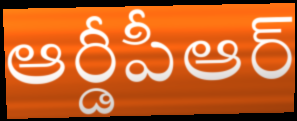
ఆర్డీపీఆర్